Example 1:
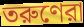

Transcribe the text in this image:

তরুণেরা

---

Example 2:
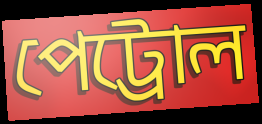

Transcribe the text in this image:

পেট্রোল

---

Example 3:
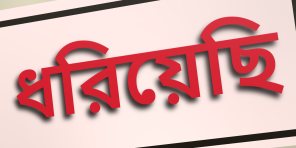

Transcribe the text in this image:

ধরিয়েছি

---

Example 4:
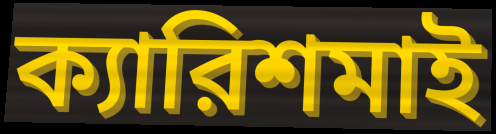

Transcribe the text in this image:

ক্যারিশমাই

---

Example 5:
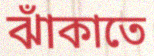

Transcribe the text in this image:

ঝাঁকাতে